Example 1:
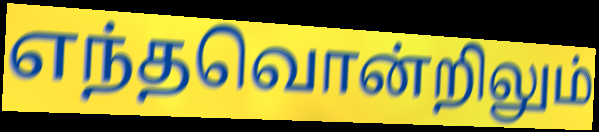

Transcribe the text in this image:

எந்தவொன்றிலும்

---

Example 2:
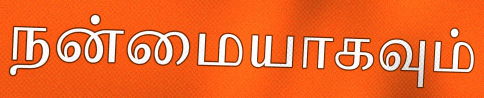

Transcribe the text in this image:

நன்மையாகவும்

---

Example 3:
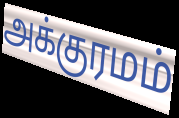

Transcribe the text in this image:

அக்குரமம்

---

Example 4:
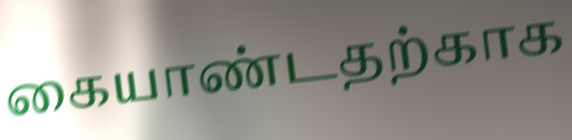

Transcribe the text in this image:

கையாண்டதற்காக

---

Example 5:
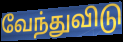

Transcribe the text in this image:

வேந்துவிடு